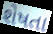
શેષતા